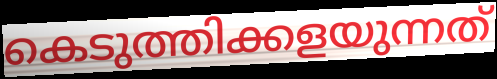
കെടുത്തിക്കളയുന്നത്